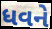
ધવને